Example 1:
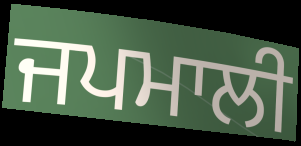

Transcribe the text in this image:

ਜਪਮਾਲੀ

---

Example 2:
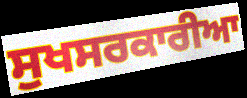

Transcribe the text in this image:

ਸੁਖਸਰਕਾਰੀਆ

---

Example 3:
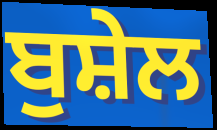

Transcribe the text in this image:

ਬੁਸ਼ੇਲ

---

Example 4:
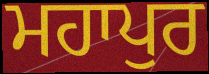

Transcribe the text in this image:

ਮਹਾਪੁਰ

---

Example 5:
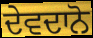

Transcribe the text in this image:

ਦੇਵਦਾਨੋ